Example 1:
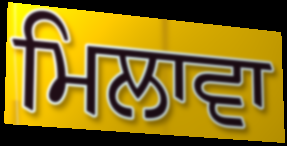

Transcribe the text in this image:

ਮਿਲਾਵਾ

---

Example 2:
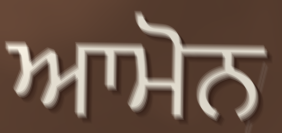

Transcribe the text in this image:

ਆਮੋਨ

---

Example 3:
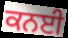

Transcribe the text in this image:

ਕਨਈ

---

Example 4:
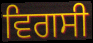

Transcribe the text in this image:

ਵਿਗਸੀ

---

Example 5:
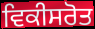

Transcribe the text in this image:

ਵਿਕੀਸਰੋਤ